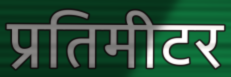
प्रतिमीटर